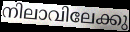
നിലാവിലേക്കു